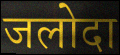
जलोदा